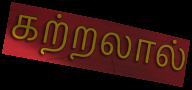
கற்றலால்